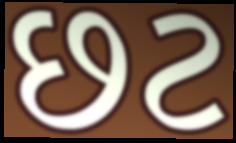
છટ